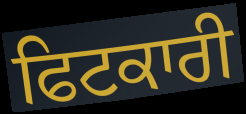
ਫਿਟਕਾਰੀ